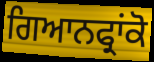
ਗਿਆਨਫ੍ਰਾਂਕੋ